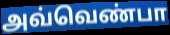
அவ்வெண்பா